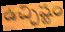
ఉచ్ఛిష్టం